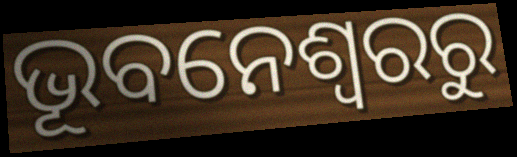
ଭୂବନେଶ୍ୱରରୁ